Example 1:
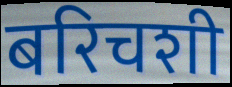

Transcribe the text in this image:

बरिचशी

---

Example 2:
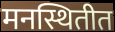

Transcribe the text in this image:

मनस्थितीत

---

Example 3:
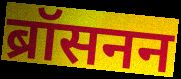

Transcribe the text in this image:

ब्रॉसनन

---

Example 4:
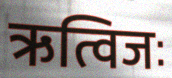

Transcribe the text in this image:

ऋत्विजः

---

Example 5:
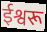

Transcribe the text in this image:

ईश्वरू